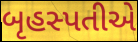
બૃહસ્પતીએ